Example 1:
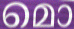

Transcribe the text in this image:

മൊ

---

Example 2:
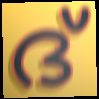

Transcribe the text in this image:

ദ്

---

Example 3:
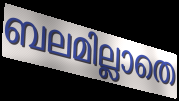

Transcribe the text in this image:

ബലമില്ലാതെ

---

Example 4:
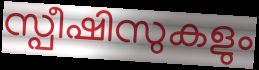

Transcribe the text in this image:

സ്പീഷിസുകളും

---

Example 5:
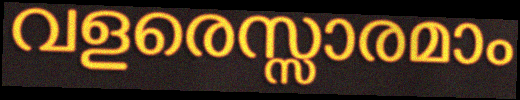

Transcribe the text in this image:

വളരെസ്സാരമാം